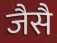
जैसै